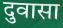
दुवासा